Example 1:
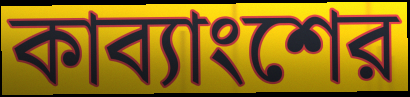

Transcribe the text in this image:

কাব্যাংশের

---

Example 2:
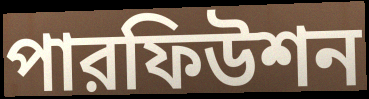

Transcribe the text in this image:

পারফিউশন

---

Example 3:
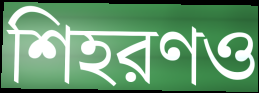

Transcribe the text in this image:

শিহরণও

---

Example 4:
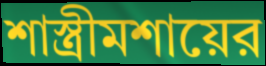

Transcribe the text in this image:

শাস্ত্রীমশায়ের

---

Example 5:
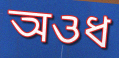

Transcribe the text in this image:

অওধ